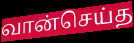
வான்செய்த